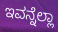
ಇವನ್ನೆಲ್ಲಾ